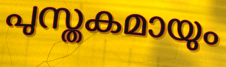
പുസ്തകമായും